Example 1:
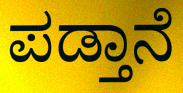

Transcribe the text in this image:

ಪಡ್ತಾನೆ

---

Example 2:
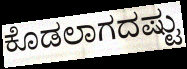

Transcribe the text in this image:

ಕೊಡಲಾಗದಷ್ಟು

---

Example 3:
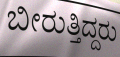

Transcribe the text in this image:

ಬೀರುತ್ತಿದ್ದರು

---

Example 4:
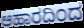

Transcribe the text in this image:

ಆಹಾರದಿಂದ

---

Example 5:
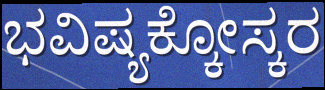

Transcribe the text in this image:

ಭವಿಷ್ಯಕ್ಕೋಸ್ಕರ